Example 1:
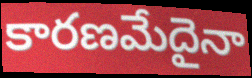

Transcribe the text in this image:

కారణమేదైనా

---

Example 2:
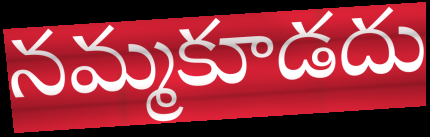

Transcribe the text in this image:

నమ్మకూడదు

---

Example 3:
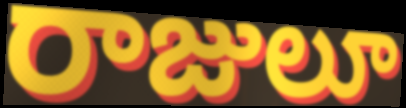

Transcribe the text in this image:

రాజులూ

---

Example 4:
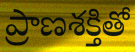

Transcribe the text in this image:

ప్రాణశక్తితో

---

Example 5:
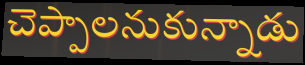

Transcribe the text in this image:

చెప్పాలనుకున్నాడు